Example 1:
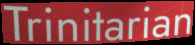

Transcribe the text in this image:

Trinitarian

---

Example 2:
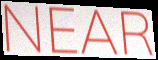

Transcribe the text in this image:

NEAR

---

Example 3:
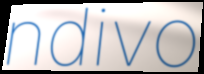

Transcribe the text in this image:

ndivo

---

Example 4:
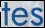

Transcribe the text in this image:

tes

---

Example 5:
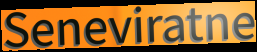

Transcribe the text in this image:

Seneviratne